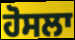
ਹੋਸਲਾ